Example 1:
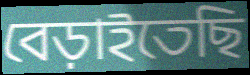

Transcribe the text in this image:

বেড়াইতেছি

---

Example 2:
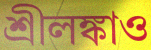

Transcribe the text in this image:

শ্রীলঙ্কাও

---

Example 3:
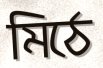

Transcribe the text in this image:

মিঠে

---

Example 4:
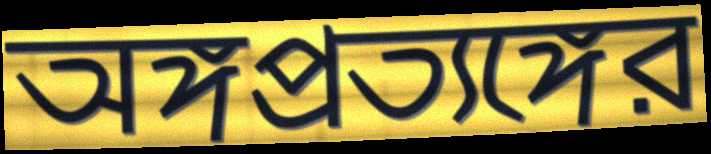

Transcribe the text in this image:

অঙ্গপ্রত্যঙ্গের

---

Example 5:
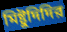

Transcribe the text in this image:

মিষ্টুদিদির